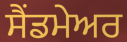
ਸੈਂਡਮੇਅਰ